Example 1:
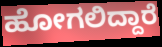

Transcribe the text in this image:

ಹೋಗಲಿದ್ದಾರೆ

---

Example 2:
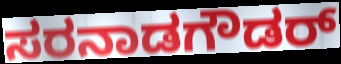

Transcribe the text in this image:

ಸರನಾಡಗೌಡರ್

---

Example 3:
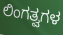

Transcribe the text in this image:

ಲಿಂಗತ್ವಗಳ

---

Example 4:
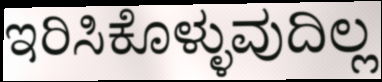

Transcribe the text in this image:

ಇರಿಸಿಕೊಳ್ಳುವುದಿಲ್ಲ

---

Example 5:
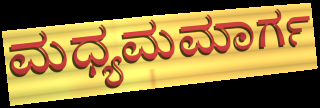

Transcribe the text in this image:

ಮಧ್ಯಮಮಾರ್ಗ